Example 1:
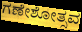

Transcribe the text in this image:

ಗಣೇಶೋತ್ಸವ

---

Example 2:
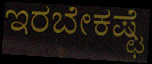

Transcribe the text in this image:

ಇರಬೇಕಷ್ಟೆ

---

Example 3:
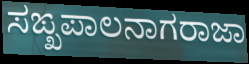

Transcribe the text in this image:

ಸಙ್ಖಪಾಲನಾಗರಾಜಾ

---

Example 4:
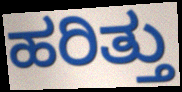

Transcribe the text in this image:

ಹರಿತ್ತು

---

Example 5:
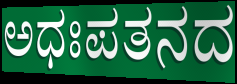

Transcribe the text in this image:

ಅಧಃಪತನದ